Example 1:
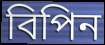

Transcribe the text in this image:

বিপিন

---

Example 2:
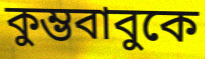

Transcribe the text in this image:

কুম্ভবাবুকে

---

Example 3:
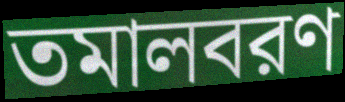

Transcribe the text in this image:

তমালবরণ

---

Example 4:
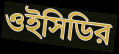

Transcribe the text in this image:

ওইসিডির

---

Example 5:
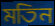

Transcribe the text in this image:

মতিন